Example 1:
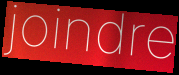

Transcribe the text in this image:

joindre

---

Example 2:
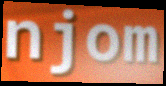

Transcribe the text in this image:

njom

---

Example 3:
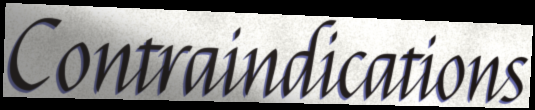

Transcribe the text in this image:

Contraindications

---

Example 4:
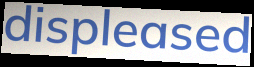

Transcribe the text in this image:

displeased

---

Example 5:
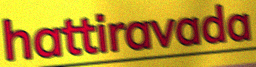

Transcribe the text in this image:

hattiravada